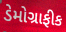
ડેમોગ્રાફીક